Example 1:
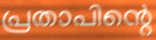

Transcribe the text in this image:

പ്രതാപിന്റെ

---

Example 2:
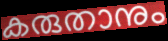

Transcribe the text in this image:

കരുതാനും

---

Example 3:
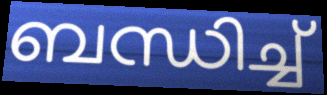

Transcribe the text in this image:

ബന്ധിച്ച്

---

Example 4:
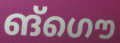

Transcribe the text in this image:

ങ്ഗൌ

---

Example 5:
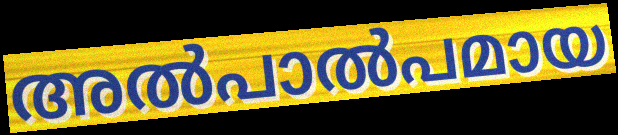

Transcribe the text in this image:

അൽപാൽപമായ